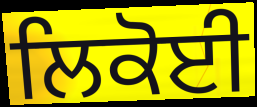
ਲਿਕੋਈ